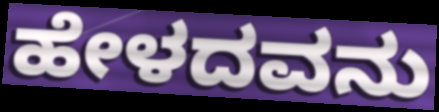
ಹೇಳದವನು